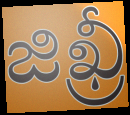
జిఖ్రీ